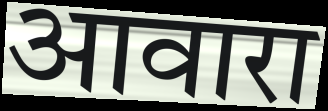
आवारा